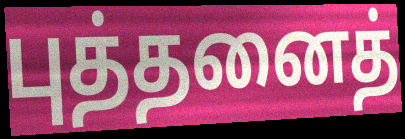
புத்தனைத்